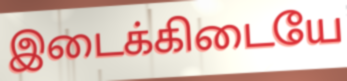
இடைக்கிடையே